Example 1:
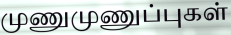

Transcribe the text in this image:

முணுமுணுப்புகள்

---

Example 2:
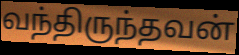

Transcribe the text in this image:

வந்திருந்தவன்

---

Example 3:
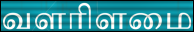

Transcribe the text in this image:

வளரிளமை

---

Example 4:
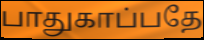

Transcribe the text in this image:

பாதுகாப்பதே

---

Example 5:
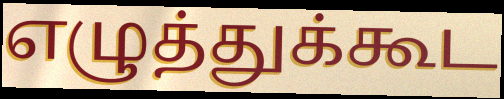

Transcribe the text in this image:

எழுத்துக்கூட